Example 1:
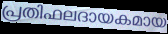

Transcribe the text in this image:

പ്രതിഫലദായകമായ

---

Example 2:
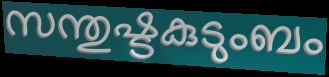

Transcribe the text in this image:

സന്തുഷ്ടകുടുംബം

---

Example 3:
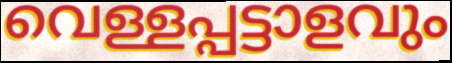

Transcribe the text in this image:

വെള്ളപ്പട്ടാളവും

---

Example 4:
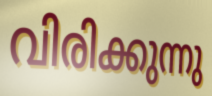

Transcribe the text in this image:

വിരിക്കുന്നു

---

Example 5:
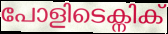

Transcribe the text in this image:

പോളിടെക്നിക്